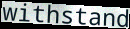
withstand